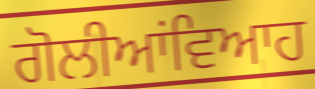
ਗੋਲੀਆਂਵਿਆਹ